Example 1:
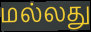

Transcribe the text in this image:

மல்லது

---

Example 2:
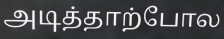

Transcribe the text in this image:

அடித்தாற்போல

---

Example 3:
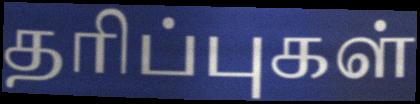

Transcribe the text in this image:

தரிப்புகள்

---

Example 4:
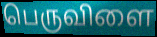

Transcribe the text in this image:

பெருவிளை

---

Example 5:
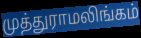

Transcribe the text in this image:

முத்துராமலிங்கம்